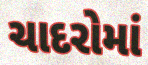
ચાદરોમાં